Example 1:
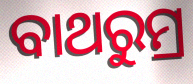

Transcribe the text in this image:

ବାଥରୁମ୍ର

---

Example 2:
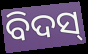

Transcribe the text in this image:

ବିଦସ୍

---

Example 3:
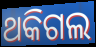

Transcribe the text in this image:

ଥକିଗଲ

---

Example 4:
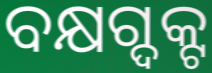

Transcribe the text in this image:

ବକ୍ଷଗ୍ଦକ୍ଟ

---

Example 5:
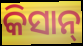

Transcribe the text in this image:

କିସାନ୍